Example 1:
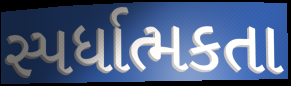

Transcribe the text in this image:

સ્પર્ધાત્મકતા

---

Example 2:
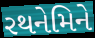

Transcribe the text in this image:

રથનેમિને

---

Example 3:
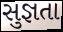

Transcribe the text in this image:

સુજ્ઞતા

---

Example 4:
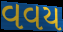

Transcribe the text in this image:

વવય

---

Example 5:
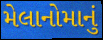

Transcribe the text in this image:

મેલાનોમાનું